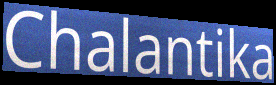
Chalantika